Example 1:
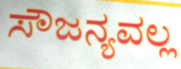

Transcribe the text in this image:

ಸೌಜನ್ಯವಲ್ಲ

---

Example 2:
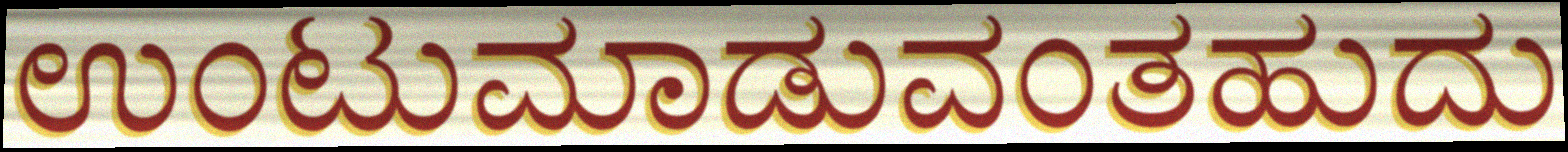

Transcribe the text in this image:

ಉಂಟುಮಾಡುವಂತಹುದು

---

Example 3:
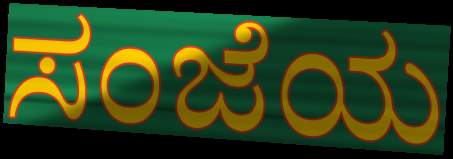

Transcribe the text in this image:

ಸಂಜೆಯ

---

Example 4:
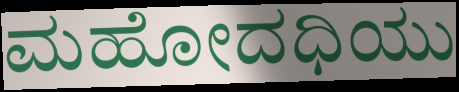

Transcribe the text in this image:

ಮಹೋದಧಿಯು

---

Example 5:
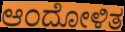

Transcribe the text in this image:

ಆಂದೋಳಿತ